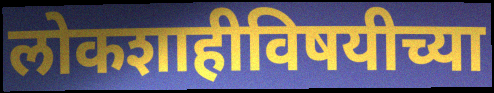
लोकशाहीविषयीच्या